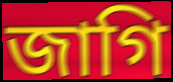
জাগি